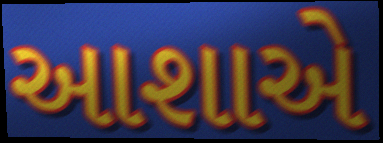
આશાએ